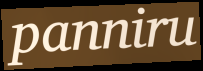
panniru